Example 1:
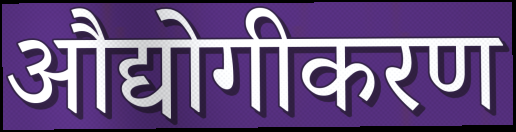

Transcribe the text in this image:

औद्योगीकरण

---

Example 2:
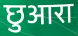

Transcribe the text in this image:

छुआरा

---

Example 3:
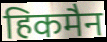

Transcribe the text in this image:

हिकमैन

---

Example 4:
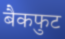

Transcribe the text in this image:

बैकफुट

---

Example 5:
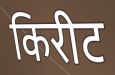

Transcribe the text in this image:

किरीट